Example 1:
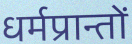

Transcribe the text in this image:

धर्मप्रान्तों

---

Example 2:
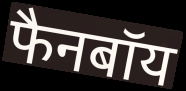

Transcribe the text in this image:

फैनबॉय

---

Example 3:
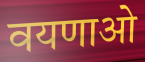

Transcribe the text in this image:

वयणाओ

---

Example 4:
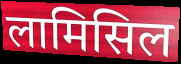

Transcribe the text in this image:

लामिसिल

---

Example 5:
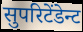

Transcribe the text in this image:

सुपरिटेंडेन्ट